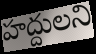
హద్దులని